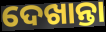
ଦେଖାନ୍ତା